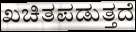
ಖಚಿತಪಡುತ್ತದೆ